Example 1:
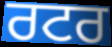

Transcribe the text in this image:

ਰਟਰ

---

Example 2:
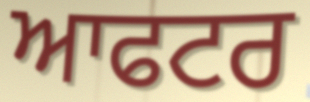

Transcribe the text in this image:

ਆਫਟਰ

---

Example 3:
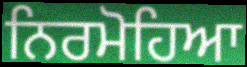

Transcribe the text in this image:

ਨਿਰਮੋਹਿਆ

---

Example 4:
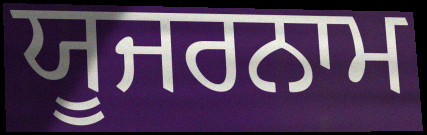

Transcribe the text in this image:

ਯੂਜਰਨਾਮ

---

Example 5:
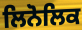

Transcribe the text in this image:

ਲਿਨੋਲਿਕ